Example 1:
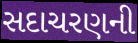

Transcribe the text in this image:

સદાચરણની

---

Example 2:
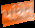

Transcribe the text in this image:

પાંચેનું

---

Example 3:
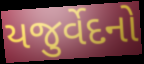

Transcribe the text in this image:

યજુર્વેદનો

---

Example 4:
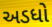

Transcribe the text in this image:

અડધો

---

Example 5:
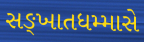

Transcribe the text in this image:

સઙ્ખાતધમ્માસે